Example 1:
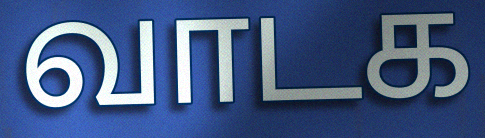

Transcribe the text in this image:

வாடக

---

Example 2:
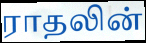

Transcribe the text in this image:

ராதலின்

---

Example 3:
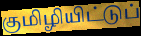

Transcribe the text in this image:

குமிழியிட்டுப்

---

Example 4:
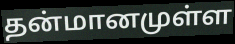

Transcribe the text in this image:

தன்மானமுள்ள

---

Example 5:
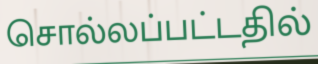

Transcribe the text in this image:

சொல்லப்பட்டதில்